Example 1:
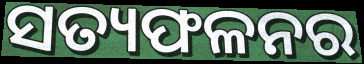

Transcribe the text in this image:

ସତ୍ୟଫଳନର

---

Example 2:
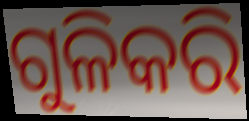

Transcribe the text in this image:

ଗୁଳିକରି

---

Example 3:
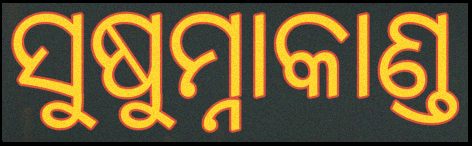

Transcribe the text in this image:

ସୁଷୁମ୍ନାକାଣ୍ଡ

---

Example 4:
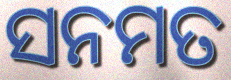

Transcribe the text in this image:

ସନମତ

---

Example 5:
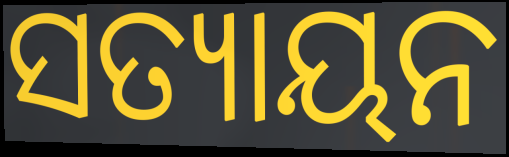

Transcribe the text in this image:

ସତ୍ୟାୟନ